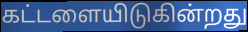
கட்டளையிடுகின்றது